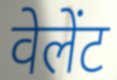
वेलेंट